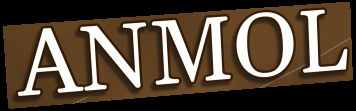
ANMOL